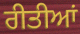
ਰੀਤੀਆਂ